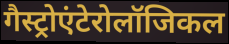
गैस्ट्रोएंटेरोलॉजिकल